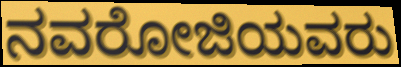
ನವರೋಜಿಯವರು